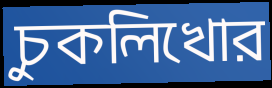
চুকলিখোর